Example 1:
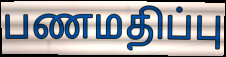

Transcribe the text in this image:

பணமதிப்பு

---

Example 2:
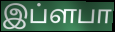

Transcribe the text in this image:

இப்ளபா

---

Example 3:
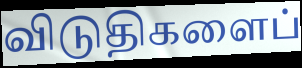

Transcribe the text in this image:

விடுதிகளைப்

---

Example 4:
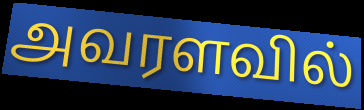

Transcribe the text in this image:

அவரளவில்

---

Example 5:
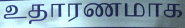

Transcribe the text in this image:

உதாரணமாக